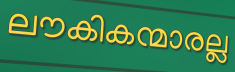
ലൗകികന്മാരല്ല